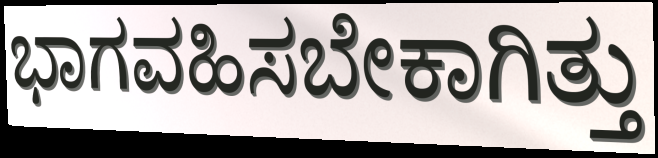
ಭಾಗವಹಿಸಬೇಕಾಗಿತ್ತು